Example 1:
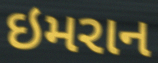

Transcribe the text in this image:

ઇમરાન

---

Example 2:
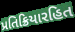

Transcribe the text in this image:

પ્રતિક્રિયારહિત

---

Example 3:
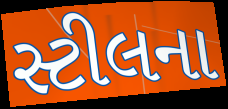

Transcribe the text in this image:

સ્ટીલના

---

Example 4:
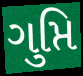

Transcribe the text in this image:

ગુપ્તિ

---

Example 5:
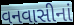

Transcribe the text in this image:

વનવાસીનાં